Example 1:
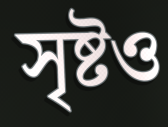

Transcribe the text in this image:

সৃষ্টও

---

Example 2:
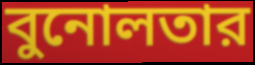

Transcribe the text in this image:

বুনোলতার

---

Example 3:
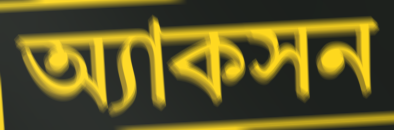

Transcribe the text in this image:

অ্যাকসন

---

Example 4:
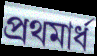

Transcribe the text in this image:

প্রথমার্ধ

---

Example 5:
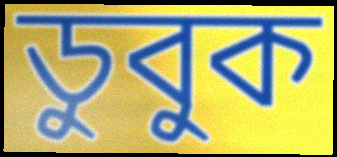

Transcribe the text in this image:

ডুবুক